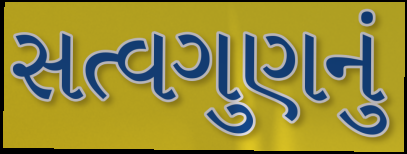
સત્વગુણનું